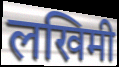
लखिमी